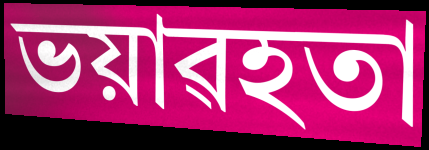
ভয়াৱহতা